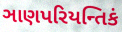
ઞાણપરિયન્તિકં